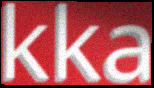
kka